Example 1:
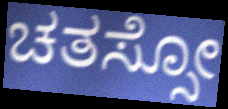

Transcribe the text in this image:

ಚತಸ್ಸೋ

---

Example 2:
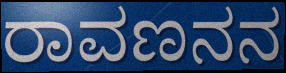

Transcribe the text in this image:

ರಾವಣನನ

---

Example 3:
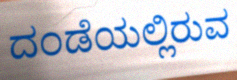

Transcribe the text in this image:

ದಂಡೆಯಲ್ಲಿರುವ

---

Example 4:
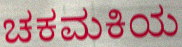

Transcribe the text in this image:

ಚಕಮಕಿಯ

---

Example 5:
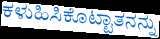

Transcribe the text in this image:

ಕಳುಹಿಸಿಕೊಟ್ಟಾತನನ್ನು